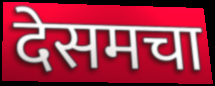
देसमचा